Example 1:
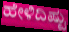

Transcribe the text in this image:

ಹೇಳಿದಿಷ್ಟು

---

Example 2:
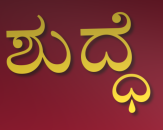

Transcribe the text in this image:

ಶುದ್ಧೆ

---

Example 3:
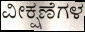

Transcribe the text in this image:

ವೀಕ್ಷಣೆಗಳ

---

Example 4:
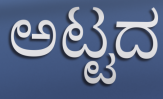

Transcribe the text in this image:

ಅಟ್ಟದ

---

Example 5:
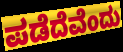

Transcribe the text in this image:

ಪಡೆದೆವೆಂದು